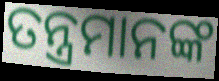
ତନ୍ତ୍ରମାନଙ୍କ